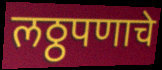
लठ्ठपणाचे